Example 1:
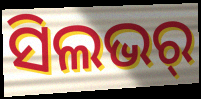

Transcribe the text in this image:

ସିଲଭର୍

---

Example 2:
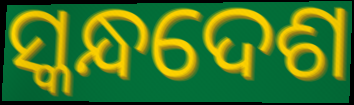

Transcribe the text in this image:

ସ୍କନ୍ଧଦେଶ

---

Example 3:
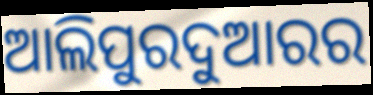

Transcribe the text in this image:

ଆଲିପୁରଦୁଆରର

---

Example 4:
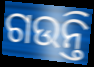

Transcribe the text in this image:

ଗଉନ୍ତି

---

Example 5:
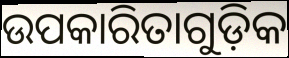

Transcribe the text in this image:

ଉପକାରିତାଗୁଡ଼ିକ